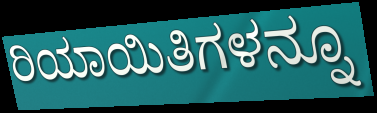
ರಿಯಾಯಿತಿಗಳನ್ನೂ